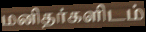
மனிதர்களிடம்